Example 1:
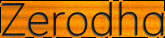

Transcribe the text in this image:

Zerodha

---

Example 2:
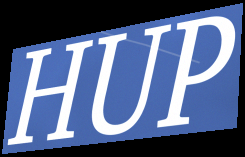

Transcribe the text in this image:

HUP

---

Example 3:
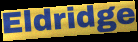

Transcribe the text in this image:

Eldridge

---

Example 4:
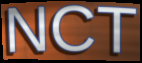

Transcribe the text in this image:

NCT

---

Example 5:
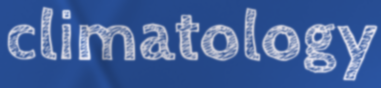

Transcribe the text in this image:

climatology